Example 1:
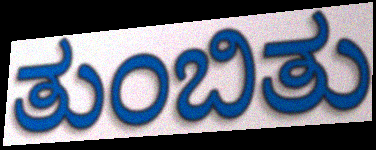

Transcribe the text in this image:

ತುಂಬಿತು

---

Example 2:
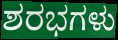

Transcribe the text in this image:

ಶರಭಗಳು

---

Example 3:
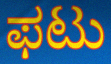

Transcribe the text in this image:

ಫಟು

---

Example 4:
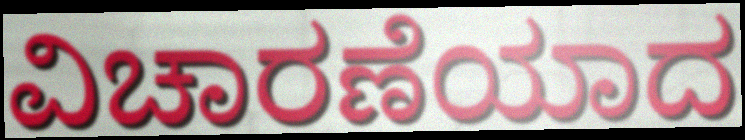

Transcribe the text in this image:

ವಿಚಾರಣೆಯಾದ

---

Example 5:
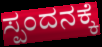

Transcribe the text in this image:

ಸ್ಪಂದನಕ್ಕೆ